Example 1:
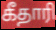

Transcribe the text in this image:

கீதாரி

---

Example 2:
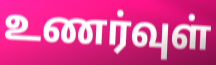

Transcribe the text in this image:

உணர்வுள்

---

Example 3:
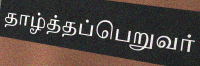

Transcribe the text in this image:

தாழ்த்தப்பெறுவர்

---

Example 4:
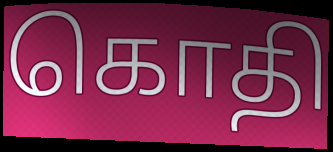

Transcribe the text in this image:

கொதி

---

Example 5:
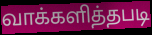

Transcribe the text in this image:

வாக்களித்தபடி